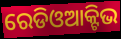
ରେଡିଓଆକ୍ଟିଭ